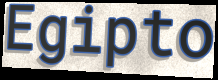
Egipto